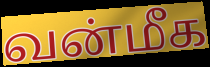
வன்மீக